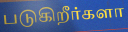
படுகிறீர்களா